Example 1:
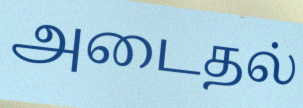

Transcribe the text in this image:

அடைதல்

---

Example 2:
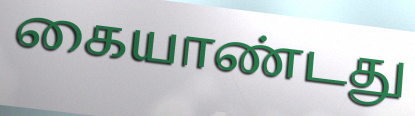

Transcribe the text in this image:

கையாண்டது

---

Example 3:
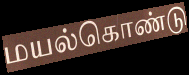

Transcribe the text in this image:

மயல்கொண்டு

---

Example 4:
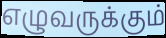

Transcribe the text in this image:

எழுவருக்கும்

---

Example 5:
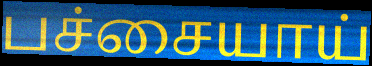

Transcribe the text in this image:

பச்சையாய்